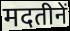
मदतीनें